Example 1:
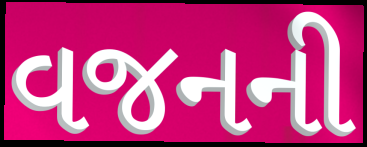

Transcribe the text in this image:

વજનની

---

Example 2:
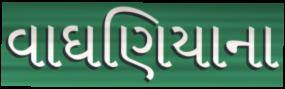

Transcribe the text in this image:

વાઘણિયાના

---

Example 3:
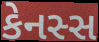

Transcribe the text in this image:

કેનસ્સ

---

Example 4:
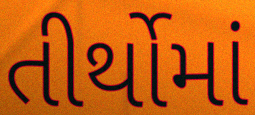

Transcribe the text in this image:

તીર્થોમાં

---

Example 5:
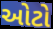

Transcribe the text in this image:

ઓટો